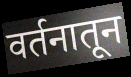
वर्तनातून